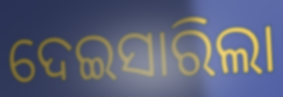
ଦେଇସାରିଲା